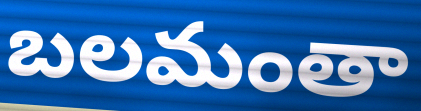
బలమంతా